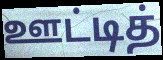
ஊட்டித்